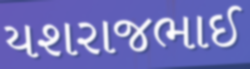
યશરાજભાઈ